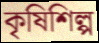
কৃষিশিল্প